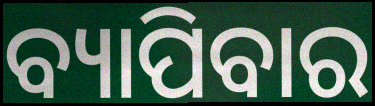
ବ୍ୟାପିବାର